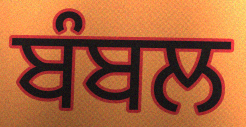
ਬੰਬਲ